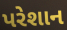
પરેશાન